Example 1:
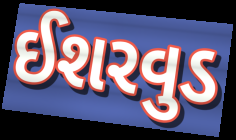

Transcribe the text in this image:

ઈશરવુડ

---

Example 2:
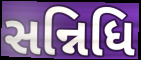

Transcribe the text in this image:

સન્નિધિ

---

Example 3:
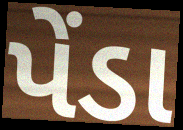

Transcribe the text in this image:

પેંડા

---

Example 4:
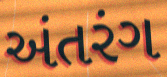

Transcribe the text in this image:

અંતરંગ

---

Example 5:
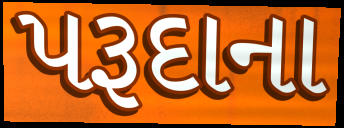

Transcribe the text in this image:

પરૂદાના